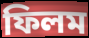
ফিলম